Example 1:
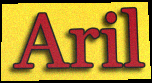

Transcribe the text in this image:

Aril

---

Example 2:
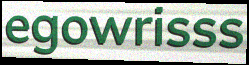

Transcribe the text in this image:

egowrisss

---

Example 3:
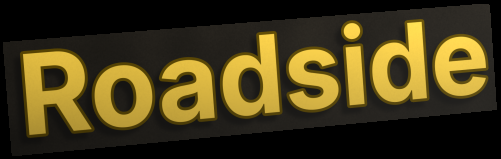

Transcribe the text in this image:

Roadside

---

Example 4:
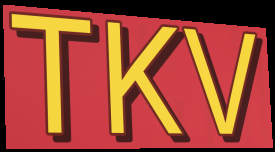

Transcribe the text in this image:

TKV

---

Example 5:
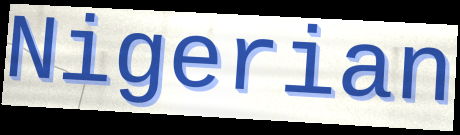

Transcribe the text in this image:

Nigerian